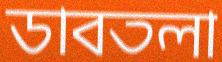
ডাবতলা